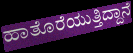
ಹಾತೊರೆಯುತ್ತಿದ್ದಾನೆ